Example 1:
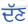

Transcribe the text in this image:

ਦੱਣ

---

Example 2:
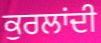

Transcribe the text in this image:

ਕੁਰਲਾਂਦੀ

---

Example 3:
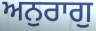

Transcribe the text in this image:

ਅਨੁਰਾਗੁ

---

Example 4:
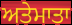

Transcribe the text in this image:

ਅਤੇਮਾਤਾ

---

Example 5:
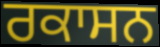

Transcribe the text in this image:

ਰਕਾਸਨ